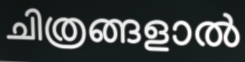
ചിത്രങ്ങളാൽ